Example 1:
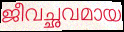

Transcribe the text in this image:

ജീവച്ഛവമായ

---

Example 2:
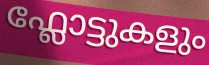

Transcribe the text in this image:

ഫ്ലോട്ടുകളും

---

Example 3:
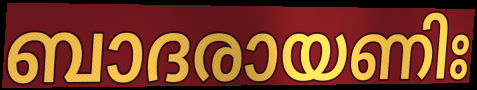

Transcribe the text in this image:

ബാദരായണിഃ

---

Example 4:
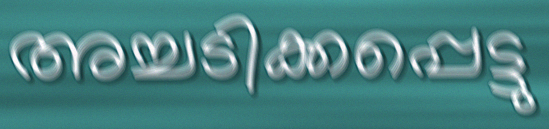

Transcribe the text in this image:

അച്ചടിക്കപ്പെട്ടു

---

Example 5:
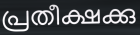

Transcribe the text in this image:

പ്രതീക്ഷക്കു